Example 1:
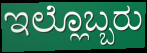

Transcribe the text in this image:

ಇಲ್ಲೊಬ್ಬರು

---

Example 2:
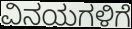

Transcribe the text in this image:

ವಿನಯಗಳಿಗೆ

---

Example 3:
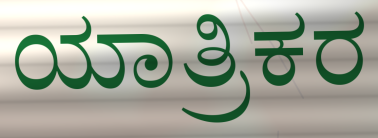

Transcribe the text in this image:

ಯಾತ್ರಿಕರ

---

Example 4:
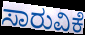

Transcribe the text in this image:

ಸಾರುವಿಕೆ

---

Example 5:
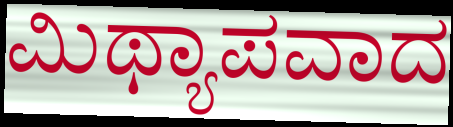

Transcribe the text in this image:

ಮಿಥ್ಯಾಪವಾದ